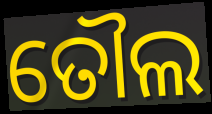
ତୌଲ